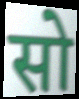
सो